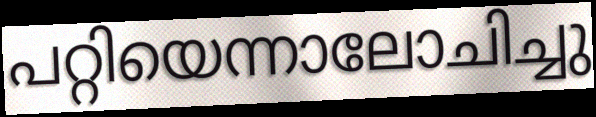
പറ്റിയെന്നാലോചിച്ചു